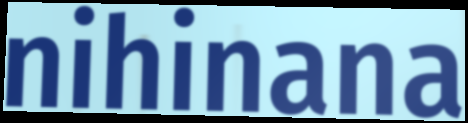
nihinana